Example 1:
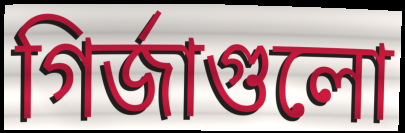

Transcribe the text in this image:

গির্জাগুলো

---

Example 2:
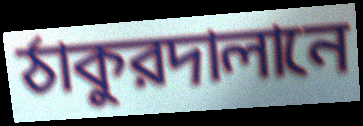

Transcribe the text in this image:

ঠাকুরদালানে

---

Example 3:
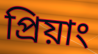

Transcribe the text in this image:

প্রিয়াং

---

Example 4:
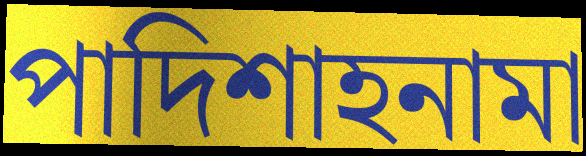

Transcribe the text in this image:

পাদিশাহনামা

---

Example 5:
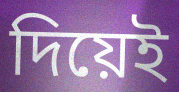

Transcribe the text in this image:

দিয়েই